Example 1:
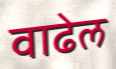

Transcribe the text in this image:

वाढेल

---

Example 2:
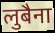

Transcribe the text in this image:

लुबैना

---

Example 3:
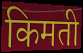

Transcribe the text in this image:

किमती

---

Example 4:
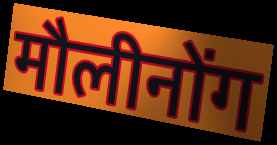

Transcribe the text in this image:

मौलीनोंग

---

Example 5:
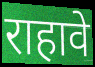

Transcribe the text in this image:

राहावे